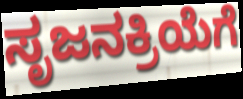
ಸೃಜನಕ್ರಿಯೆಗೆ